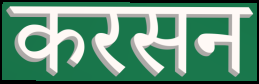
करसन